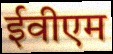
ईवीएम